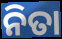
ନିତା